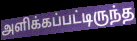
அளிக்கப்பட்டிருந்த